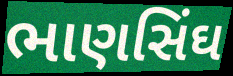
ભાણસિંઘ